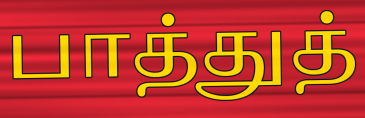
பாத்துத்